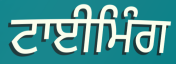
ਟਾਈਮਿੰਗ